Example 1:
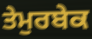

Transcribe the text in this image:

ਤੇਮੁਰਬੇਕ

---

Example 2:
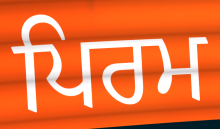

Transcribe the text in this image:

ਪਿਰਮ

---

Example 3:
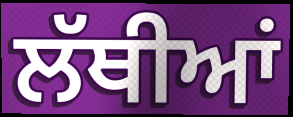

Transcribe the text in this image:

ਲੱਥੀਆਂ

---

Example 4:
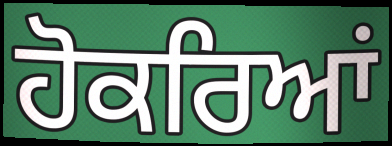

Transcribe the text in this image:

ਹੋਕਰਿਆਂ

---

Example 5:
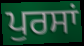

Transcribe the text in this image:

ਪੁਰਸਾਂ